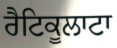
ਰੈਟਿਕੂਲਾਟਾ